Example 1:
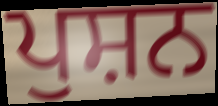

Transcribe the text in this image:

ਪੁਸ਼ਨ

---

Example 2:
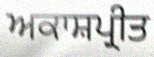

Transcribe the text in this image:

ਅਕਾਸ਼ਪ੍ਰੀਤ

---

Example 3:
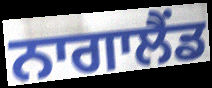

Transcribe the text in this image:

ਨਾਗਾਲੈਂਡ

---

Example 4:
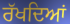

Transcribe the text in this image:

ਰੱਖਦਿਆਂ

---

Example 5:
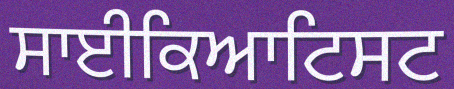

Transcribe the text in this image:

ਸਾਈਕਿਆਟਿਸਟ